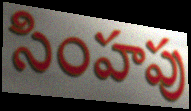
సింహపు